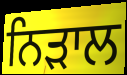
ਨਿੜਾਲ